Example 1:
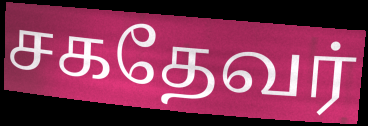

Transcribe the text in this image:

சகதேவர்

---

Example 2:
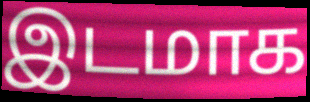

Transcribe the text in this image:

இடமாக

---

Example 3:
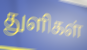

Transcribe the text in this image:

துளிகள்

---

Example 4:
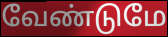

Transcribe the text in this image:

வேண்டுமே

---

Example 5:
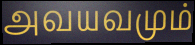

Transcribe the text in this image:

அவயவமும்